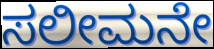
ಸಲೀಮನೇ